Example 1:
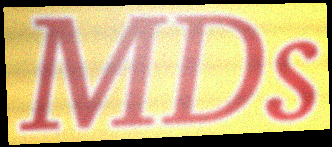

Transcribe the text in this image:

MDs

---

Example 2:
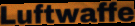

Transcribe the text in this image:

Luftwaffe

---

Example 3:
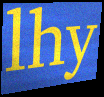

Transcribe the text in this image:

lhy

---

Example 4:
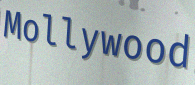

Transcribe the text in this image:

Mollywood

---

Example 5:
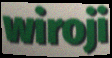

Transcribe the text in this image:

wiroji